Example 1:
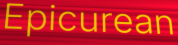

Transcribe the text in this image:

Epicurean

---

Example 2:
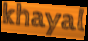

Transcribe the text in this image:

khayal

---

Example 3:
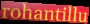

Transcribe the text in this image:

rohantillu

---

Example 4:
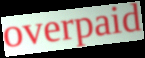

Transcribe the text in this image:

overpaid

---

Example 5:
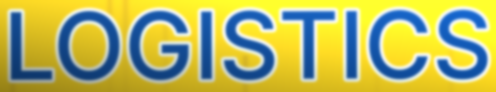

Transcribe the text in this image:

LOGISTICS